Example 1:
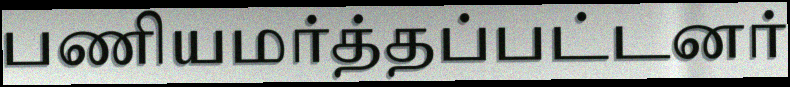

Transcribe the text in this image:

பணியமர்த்தப்பட்டனர்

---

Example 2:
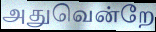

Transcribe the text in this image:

அதுவென்றே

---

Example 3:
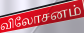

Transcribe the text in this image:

விலோசனம்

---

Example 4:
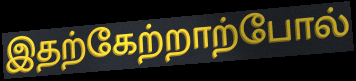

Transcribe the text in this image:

இதற்கேற்றாற்போல்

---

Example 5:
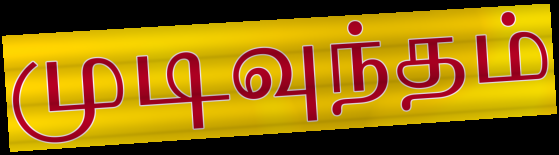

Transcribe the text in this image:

முடிவுந்தம்